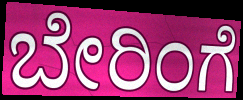
ಬೇರಿಂಗೆ